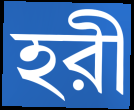
হরী